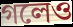
গলেও